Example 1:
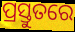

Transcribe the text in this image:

ପ୍ରସ୍ତୁତରେ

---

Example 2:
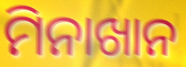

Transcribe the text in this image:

ମିନାଖାନ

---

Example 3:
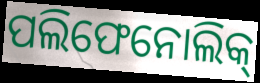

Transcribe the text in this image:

ପଲିଫେନୋଲିକ୍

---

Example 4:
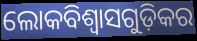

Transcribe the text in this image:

ଲୋକବିଶ୍ଵାସଗୁଡ଼ିକର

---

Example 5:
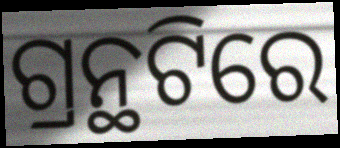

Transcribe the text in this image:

ଗ୍ରନ୍ଥଟିରେ